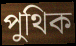
পুথিক